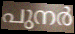
പുനർ